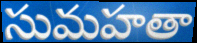
సుమహతా